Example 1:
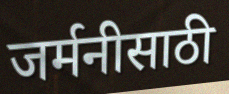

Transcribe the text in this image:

जर्मनीसाठी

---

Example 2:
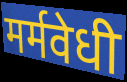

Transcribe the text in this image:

मर्मवेधी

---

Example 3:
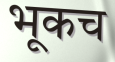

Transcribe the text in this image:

भूकच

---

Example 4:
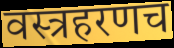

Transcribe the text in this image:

वस्त्रहरणच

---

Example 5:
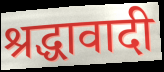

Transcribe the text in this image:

श्रद्धावादी